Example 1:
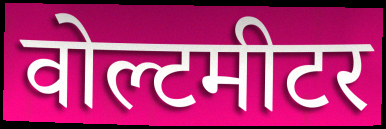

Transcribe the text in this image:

वोल्टमीटर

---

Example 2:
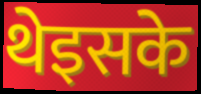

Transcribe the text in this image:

थेइसके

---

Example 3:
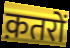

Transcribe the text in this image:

क़तरों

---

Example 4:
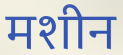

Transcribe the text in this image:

मशीन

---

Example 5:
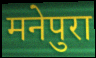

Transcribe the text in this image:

मनेपुरा